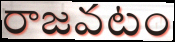
రాజవటం